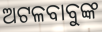
ଅଟଳବାବୁଙ୍କ